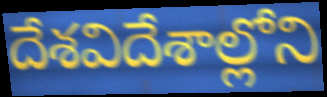
దేశవిదేశాల్లోని